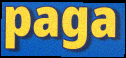
paga